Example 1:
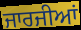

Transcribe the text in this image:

ਜਾਰਜੀਆਂ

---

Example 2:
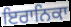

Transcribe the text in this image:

ਇਰਾਨਿਕਾ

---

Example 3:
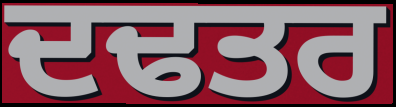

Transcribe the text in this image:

ਦਢਤਰ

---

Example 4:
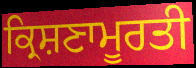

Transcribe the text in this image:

ਕ੍ਰਿਸ਼ਣਾਮੂਰਤੀ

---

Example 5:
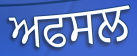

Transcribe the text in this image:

ਅਫਸਲ